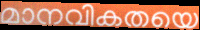
മാനവികതയെ